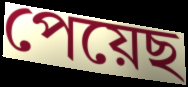
পেয়েছ